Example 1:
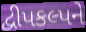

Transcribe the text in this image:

દ્વીપકલ્પને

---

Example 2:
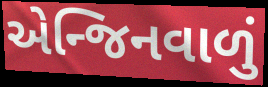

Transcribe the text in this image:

એન્જિનવાળું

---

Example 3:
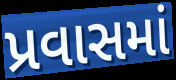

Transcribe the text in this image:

પ્રવાસમાં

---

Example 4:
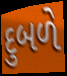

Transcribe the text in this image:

દુબળે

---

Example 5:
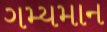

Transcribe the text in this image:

ગમ્યમાન